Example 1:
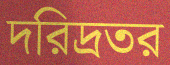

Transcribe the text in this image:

দরিদ্রতর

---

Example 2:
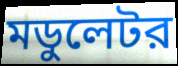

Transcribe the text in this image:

মডুলেটর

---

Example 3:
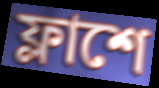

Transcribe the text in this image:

ফ্লাশে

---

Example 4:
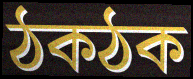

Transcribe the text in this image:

ঠকঠক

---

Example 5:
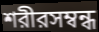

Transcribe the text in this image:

শরীরসম্বন্ধ